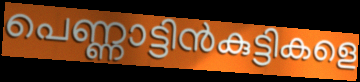
പെണ്ണാട്ടിൻകുട്ടികളെ